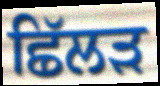
ਛਿੱਲੜ